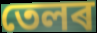
তেলৰ